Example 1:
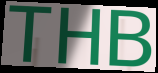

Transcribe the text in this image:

THB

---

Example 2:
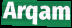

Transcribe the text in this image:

Arqam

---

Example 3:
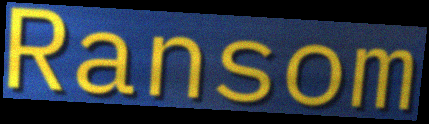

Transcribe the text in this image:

Ransom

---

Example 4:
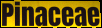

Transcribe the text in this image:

Pinaceae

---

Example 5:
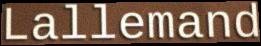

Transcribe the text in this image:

Lallemand